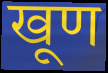
खूण